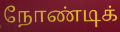
நோண்டிக்